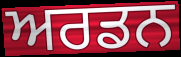
ਅਰਡਨ